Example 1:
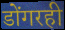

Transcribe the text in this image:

डोंगरही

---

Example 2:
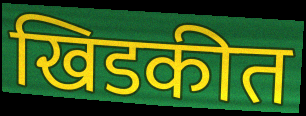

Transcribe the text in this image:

खिडकीत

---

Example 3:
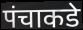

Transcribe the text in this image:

पंचाकडे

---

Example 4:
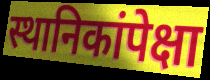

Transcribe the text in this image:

स्थानिकांपेक्षा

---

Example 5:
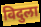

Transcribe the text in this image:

विदुला